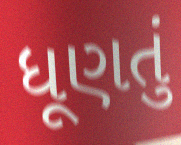
ધૂણતું